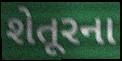
શેતૂરના